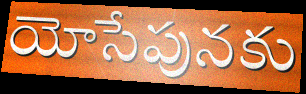
యోసేపునకు